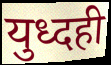
युध्दही